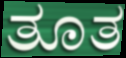
ತೂತ